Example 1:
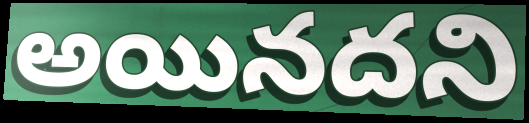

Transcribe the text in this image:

అయినదని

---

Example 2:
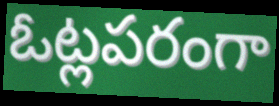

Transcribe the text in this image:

ఓట్లపరంగా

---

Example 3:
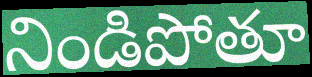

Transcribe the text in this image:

నిండిపోతూ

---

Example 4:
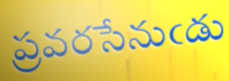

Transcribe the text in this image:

ప్రవరసేనుఁడు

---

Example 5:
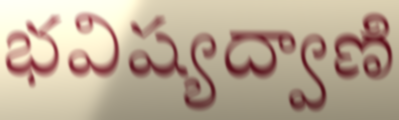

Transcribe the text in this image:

భవిష్యద్వాణి